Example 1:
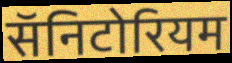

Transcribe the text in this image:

सॅनिटोरियम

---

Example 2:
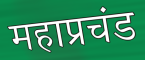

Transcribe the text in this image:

महाप्रचंड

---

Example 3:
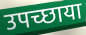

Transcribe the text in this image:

उपच्छाया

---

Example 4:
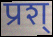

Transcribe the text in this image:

प्रश्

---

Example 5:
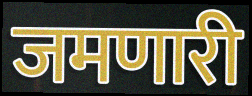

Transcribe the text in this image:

जमणारी